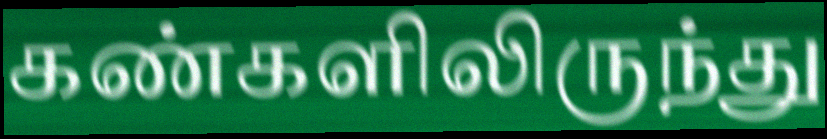
கண்களிலிருந்து